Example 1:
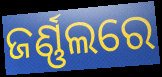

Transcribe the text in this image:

ଜର୍ଣ୍ଣଲରେ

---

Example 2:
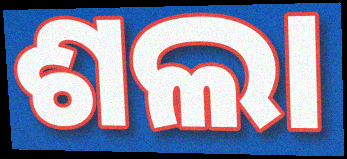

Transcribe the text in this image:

ଶଲା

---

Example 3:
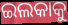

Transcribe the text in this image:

ଇଲକାକୁ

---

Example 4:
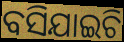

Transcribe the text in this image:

ବସିଯାଇଚି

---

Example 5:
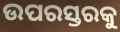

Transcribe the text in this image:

ଉପରସ୍ତରକୁ